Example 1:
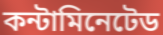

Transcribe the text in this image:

কন্টামিনেটেড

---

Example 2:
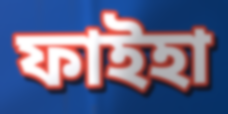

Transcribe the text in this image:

ফাইহা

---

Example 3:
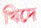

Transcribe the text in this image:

খিদে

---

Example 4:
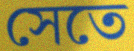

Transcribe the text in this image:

সেতে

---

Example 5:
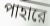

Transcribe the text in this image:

পাহারে